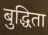
बुद्धिता